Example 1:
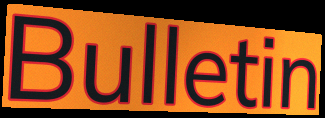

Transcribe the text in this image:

Bulletin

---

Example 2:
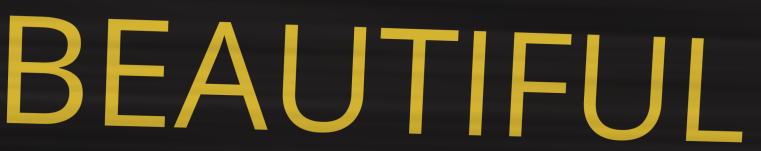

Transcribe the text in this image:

BEAUTIFUL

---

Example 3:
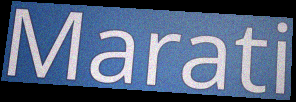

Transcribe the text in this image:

Marati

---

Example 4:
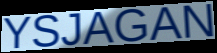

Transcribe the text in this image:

YSJAGAN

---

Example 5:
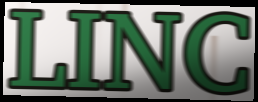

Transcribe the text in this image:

LINC